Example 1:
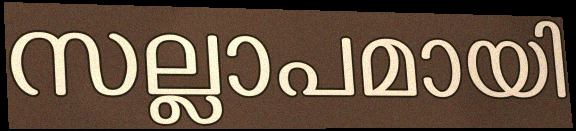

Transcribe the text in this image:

സല്ലാപമായി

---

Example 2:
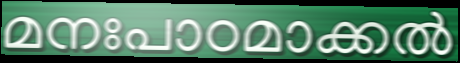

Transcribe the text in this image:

മനഃപാഠമാക്കൽ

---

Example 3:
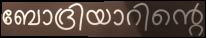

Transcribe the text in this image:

ബോദ്രിയാറിന്റെ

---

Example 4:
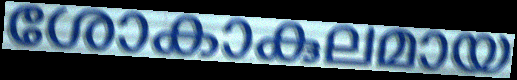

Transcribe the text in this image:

ശോകാകുലമായ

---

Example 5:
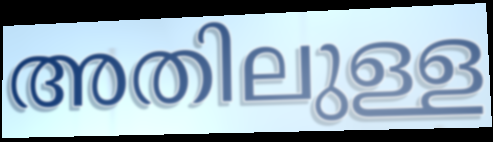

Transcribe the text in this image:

അതിലുള്ള